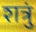
शत्रुं